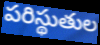
పరిస్థుతుల